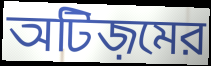
অটিজ়মের